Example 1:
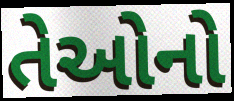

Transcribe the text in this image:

તેઓનો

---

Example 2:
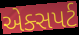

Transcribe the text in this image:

એક્સપર્ટ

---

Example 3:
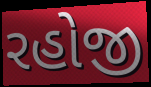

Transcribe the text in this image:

રહોજી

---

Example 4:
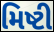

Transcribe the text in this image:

મિષ્ટી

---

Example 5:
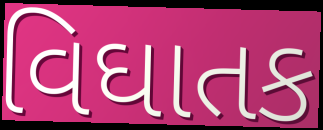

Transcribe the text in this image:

વિઘાતક